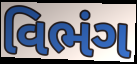
વિભંગ